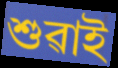
শুৱাই